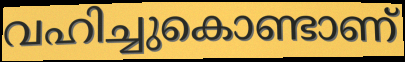
വഹിച്ചുകൊണ്ടാണ്